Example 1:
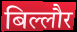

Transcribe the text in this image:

बिल्लौर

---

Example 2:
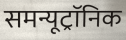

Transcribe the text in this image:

समन्यूट्रॉनिक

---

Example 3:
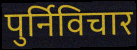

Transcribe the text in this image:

पुर्निविचार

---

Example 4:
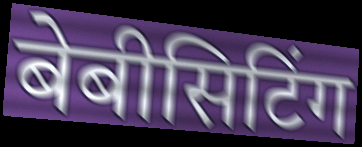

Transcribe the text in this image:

बेबीसिटिंग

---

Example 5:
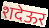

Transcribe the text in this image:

शदेऊर